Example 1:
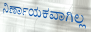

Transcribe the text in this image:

ನಿರ್ಣಾಯಕವಾಗಿಲ್ಲ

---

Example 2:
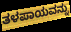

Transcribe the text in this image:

ತಳಪಾಯವನ್ನು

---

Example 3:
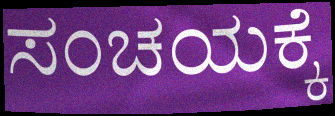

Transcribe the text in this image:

ಸಂಚಯಕ್ಕೆ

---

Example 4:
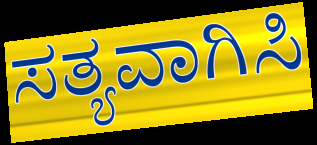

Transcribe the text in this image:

ಸತ್ಯವಾಗಿಸಿ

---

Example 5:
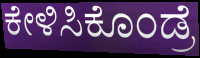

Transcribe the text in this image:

ಕೇಳಿಸಿಕೊಂಡ್ರೆ